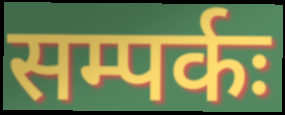
सम्पर्कः